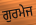
ਗੁਰਮੇਜ